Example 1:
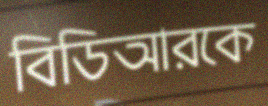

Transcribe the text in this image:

বিডিআরকে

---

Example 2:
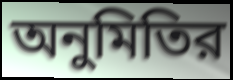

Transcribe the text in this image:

অনুমিতির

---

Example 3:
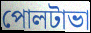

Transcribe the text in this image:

পোলটাভা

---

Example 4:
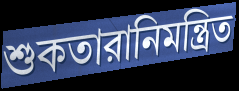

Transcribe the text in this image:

শুকতারানিমন্ত্রিত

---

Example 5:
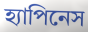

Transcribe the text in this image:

হ্যাপিনেস